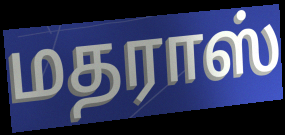
மதராஸ்